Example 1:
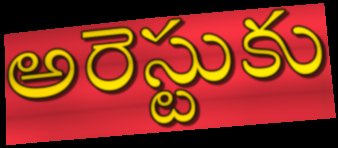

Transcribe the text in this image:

అరెస్టుకు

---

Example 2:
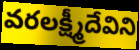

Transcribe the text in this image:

వరలక్ష్మీదేవిని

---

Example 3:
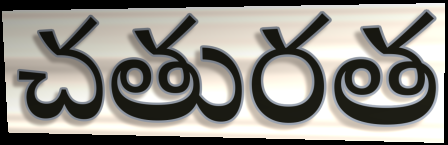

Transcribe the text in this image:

చతురత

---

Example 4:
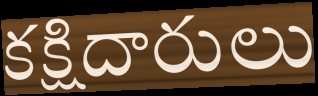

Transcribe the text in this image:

కక్షిదారులు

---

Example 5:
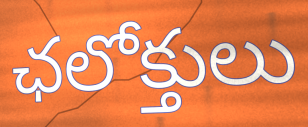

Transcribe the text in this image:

ఛలోక్తులు